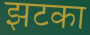
झटका